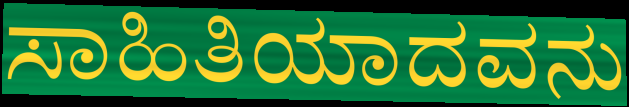
ಸಾಹಿತಿಯಾದವನು